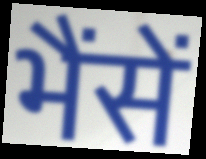
भैंसें